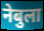
नेबुला